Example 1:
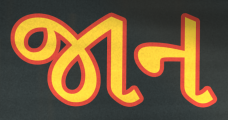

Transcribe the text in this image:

જાન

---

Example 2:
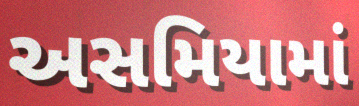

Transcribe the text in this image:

અસમિયામાં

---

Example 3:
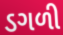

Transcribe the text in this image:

ડગળી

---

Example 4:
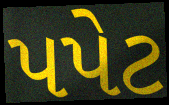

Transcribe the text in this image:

પપેટ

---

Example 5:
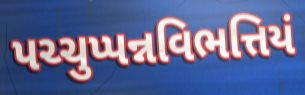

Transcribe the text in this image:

પચ્ચુપ્પન્નવિભત્તિયં